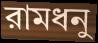
রামধনু